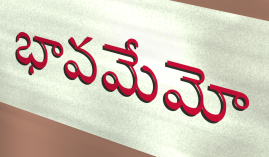
భావమేమో